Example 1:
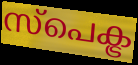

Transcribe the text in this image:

സ്‌പെക്ട്ര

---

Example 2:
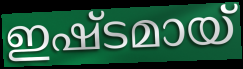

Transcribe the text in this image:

ഇഷ്ടമായ്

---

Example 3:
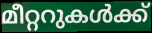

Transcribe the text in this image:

മീറ്ററുകൾക്ക്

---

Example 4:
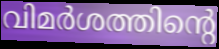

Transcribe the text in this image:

വിമർശത്തിന്റെ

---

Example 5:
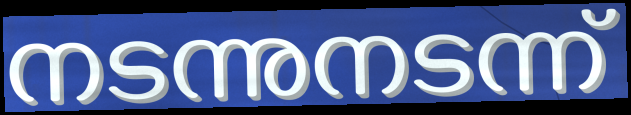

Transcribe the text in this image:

നടന്നുനടന്ന്